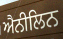
ਐਨੀਲਿਨ